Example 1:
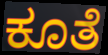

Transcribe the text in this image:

ಕೂತೆ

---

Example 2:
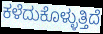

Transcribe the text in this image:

ಕಳೆದುಕೊಳ್ಳುತ್ತಿದೆ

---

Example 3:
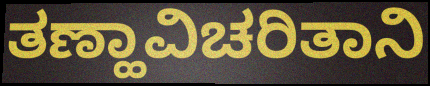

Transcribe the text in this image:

ತಣ್ಹಾವಿಚರಿತಾನಿ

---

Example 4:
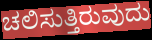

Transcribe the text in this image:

ಚಲಿಸುತ್ತಿರುವುದು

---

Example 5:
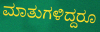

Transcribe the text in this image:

ಮಾತುಗಳಿದ್ದರೂ